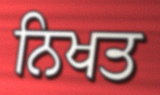
ਨਿਖਤ